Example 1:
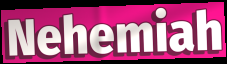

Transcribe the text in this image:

Nehemiah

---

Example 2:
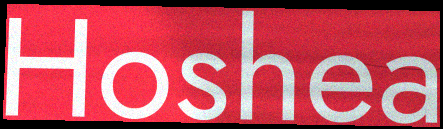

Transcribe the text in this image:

Hoshea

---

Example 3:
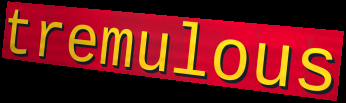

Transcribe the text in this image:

tremulous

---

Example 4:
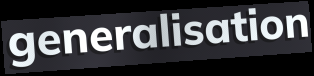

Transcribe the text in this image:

generalisation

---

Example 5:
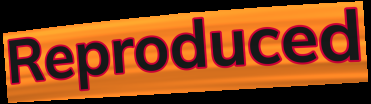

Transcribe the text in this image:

Reproduced